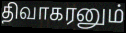
திவாகரனும்